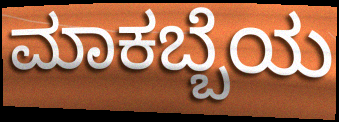
ಮಾಕಬ್ಬೆಯ